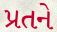
પ્રતને